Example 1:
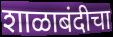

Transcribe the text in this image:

शाळाबंदीचा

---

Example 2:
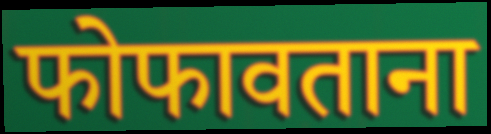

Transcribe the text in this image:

फोफावताना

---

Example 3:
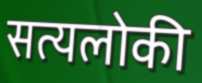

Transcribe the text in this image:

सत्यलोकी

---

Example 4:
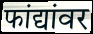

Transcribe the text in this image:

फांद्यांवर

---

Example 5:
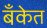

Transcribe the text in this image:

बँकेत